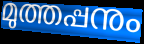
മുത്തപ്പനും